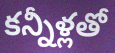
కన్నీళ్లతో